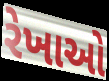
રેખાઓ